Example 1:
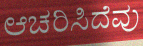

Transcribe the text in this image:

ಆಚರಿಸಿದೆವು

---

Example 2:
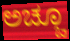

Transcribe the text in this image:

ಅಚ್ಚೂ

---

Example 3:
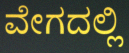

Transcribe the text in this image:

ವೇಗದಲ್ಲಿ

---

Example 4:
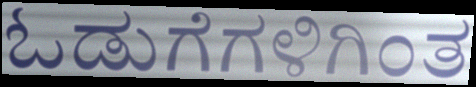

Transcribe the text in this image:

ಓಡುಗೆಗಳಿಗಿಂತ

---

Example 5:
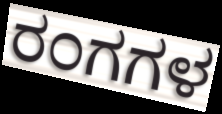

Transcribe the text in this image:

ರಂಗಗಳ